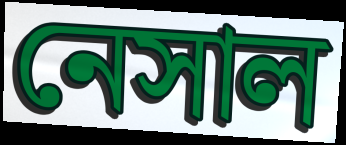
নেসাল